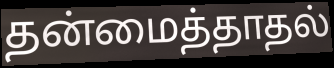
தன்மைத்தாதல்